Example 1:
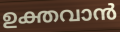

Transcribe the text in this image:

ഉക്തവാൻ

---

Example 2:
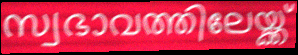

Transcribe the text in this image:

സ്വഭാവത്തിലേയ്ക്ക്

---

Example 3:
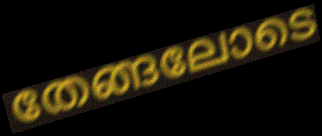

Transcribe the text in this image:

തേങ്ങലോടെ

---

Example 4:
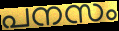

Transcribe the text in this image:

പനസം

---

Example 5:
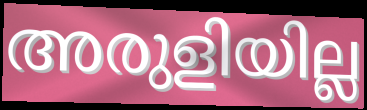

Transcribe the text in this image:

അരുളിയില്ല